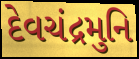
દેવચંદ્રમુનિ